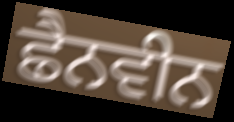
ਛੈਨਵੀਨ